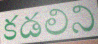
కడలిని